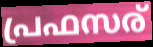
പ്രഫസര്